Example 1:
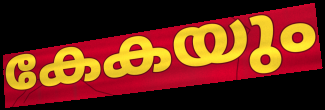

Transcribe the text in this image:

കേകയും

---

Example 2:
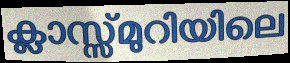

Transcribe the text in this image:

ക്ലാസ്സ്മുറിയിലെ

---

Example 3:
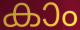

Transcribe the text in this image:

കാം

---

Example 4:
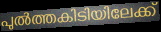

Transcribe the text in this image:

പുൽത്തകിടിയിലേക്ക്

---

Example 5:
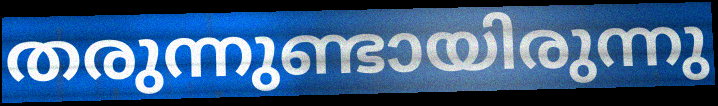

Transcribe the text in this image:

തരുന്നുണ്ടായിരുന്നു